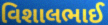
વિશાલભાઈ